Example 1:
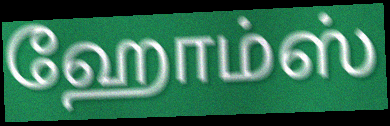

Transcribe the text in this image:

ஹோம்ஸ்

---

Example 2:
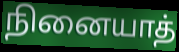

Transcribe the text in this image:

நினையாத்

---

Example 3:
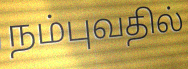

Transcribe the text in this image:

நம்புவதில்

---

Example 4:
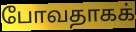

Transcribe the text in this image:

போவதாகக்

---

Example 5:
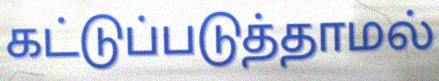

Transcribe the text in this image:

கட்டுப்படுத்தாமல்